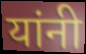
यांनी